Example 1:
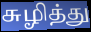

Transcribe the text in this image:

சுழித்து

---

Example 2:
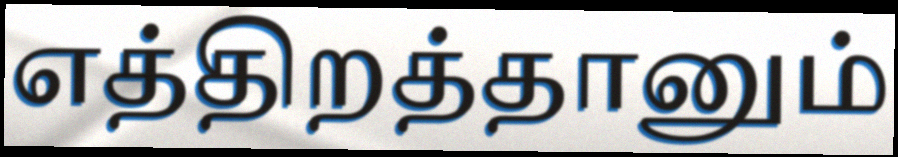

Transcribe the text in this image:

எத்திறத்தானும்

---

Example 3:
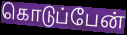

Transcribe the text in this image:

கொடுப்பேன்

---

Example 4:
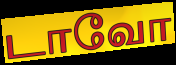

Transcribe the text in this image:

டாவோ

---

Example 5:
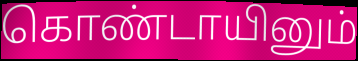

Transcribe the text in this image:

கொண்டாயினும்